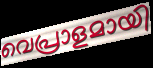
വെപ്രാളമായി